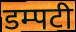
डम्पटी